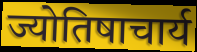
ज्योतिषाचार्य